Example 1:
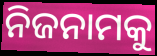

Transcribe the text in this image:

ନିଜନାମକୁ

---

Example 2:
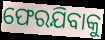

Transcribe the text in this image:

ଫେରଯିବାକୁ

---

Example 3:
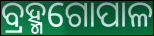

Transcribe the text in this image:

ବ୍ରହ୍ମଗୋପାଳ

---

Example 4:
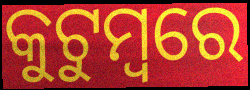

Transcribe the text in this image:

କୁଟୁମ୍ଵରେ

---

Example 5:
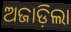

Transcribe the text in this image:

ଅଜାଡ଼ିଲା